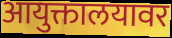
आयुक्तालयावर